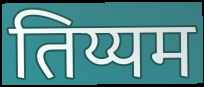
तिय्यम